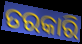
ତରକାରି